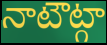
నాటౌట్గా